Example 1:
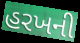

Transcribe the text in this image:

હરખની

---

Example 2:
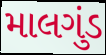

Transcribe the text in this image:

માલગુંડ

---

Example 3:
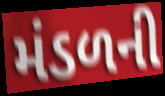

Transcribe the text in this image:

મંડળની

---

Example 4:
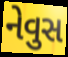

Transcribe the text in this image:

નેવુસ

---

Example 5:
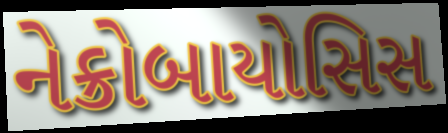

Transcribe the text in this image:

નેક્રોબાયોસિસ